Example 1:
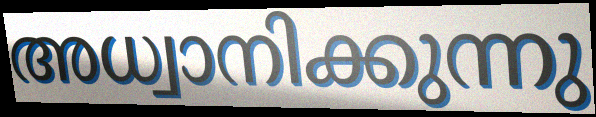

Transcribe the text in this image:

അധ്വാനിക്കുന്നു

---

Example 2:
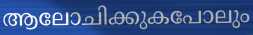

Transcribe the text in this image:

ആലോചിക്കുകപോലും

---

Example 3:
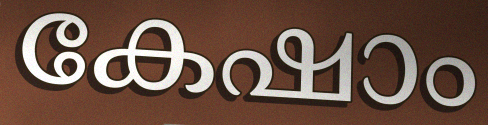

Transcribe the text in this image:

കേഷാം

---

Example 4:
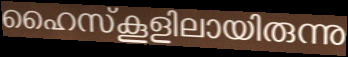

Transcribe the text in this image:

ഹൈസ്‌കൂളിലായിരുന്നു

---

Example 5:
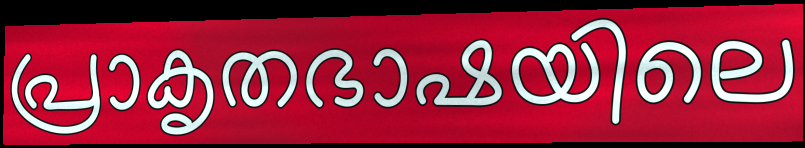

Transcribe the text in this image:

പ്രാകൃതഭാഷയിലെ